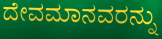
ದೇವಮಾನವರನ್ನು